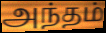
அந்தம்